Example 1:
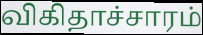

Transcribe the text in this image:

விகிதாச்சாரம்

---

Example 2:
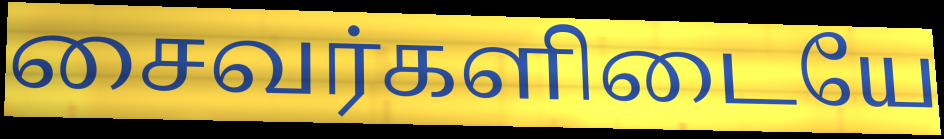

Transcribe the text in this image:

சைவர்களிடையே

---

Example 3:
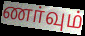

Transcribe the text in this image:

ணர்வும்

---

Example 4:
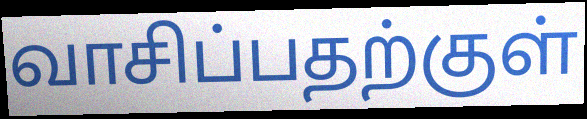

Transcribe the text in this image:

வாசிப்பதற்குள்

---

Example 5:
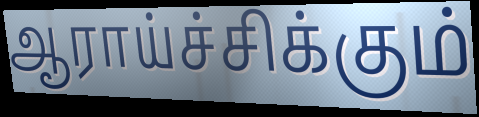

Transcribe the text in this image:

ஆராய்ச்சிக்கும்